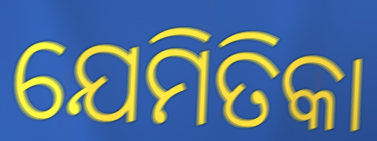
ଯେମିତିକା